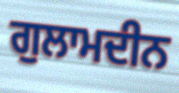
ਗੁਲਾਮਦੀਨ